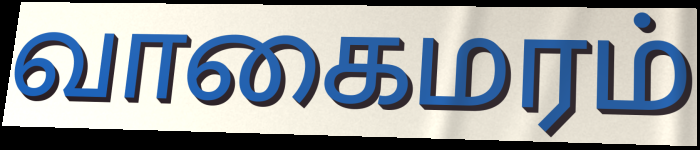
வாகைமரம்